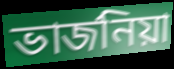
ভাৰ্জনিয়া